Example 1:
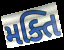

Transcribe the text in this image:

મક્તિ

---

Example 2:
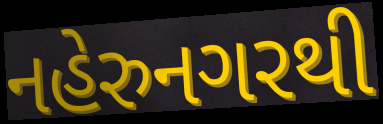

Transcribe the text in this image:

નહેરુનગરથી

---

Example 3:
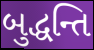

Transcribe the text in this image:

બુદ્ધન્તિ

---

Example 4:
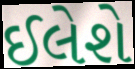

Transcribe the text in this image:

ઈલેશે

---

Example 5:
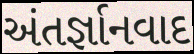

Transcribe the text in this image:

અંતર્જ્ઞાનવાદ